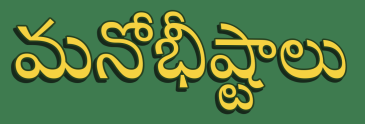
మనోభీష్టాలు